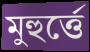
মুহুর্ত্তে